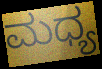
ಮಧ್ಯ